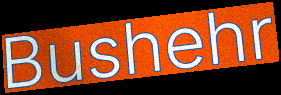
Bushehr